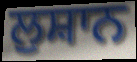
ਲੁਸ਼ਾਨ